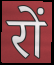
रों